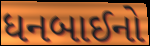
ધનબાઈનો